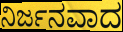
ನಿರ್ಜನವಾದ